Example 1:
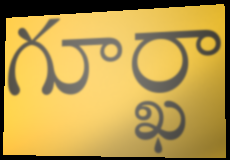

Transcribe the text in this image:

గూర్ఖా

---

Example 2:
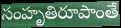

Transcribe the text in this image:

సంహృతిరూపాంతే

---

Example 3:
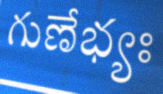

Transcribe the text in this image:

గుణేభ్యః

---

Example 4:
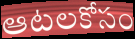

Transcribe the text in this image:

ఆటలకోసం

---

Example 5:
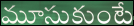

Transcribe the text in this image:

మూసుకుంటే